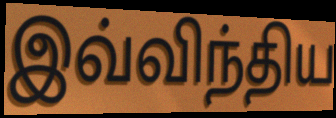
இவ்விந்திய